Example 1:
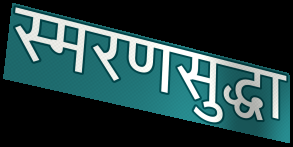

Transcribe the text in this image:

स्मरणसुद्धा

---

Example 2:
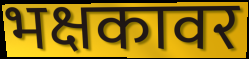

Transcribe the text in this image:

भक्षकावर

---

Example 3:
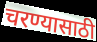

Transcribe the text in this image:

चरण्यासाठी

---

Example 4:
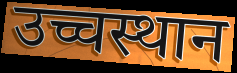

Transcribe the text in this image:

उच्चस्थान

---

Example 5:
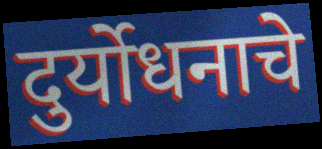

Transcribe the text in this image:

दुर्योधनाचे